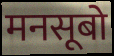
मनसूबो